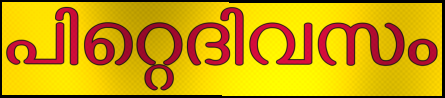
പിറ്റെദിവസം